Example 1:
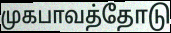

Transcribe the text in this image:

முகபாவத்தோடு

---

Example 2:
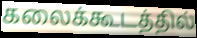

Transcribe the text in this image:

கலைக்கூடத்தில்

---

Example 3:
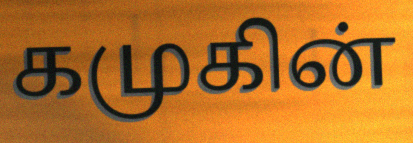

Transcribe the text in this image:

கமுகின்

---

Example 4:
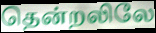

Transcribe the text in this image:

தென்றலிலே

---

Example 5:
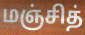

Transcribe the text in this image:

மஞ்சித்